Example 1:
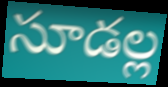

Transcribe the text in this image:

సూడల్ల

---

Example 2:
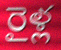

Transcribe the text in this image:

రైళ్ల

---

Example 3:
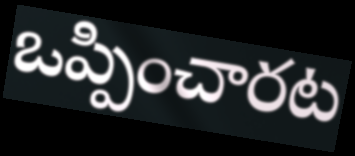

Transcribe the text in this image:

ఒప్పించారట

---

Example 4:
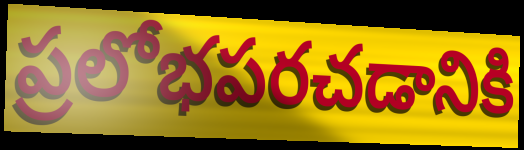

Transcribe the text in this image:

ప్రలోభపరచడానికి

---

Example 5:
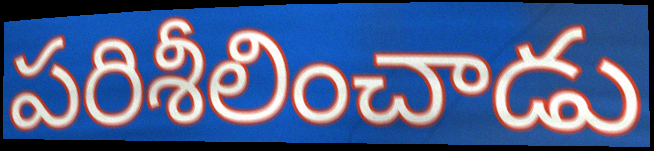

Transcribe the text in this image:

పరిశీలించాడు